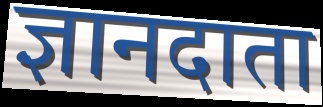
ज्ञानदाता